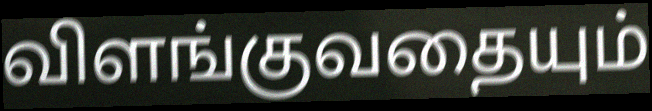
விளங்குவதையும்